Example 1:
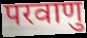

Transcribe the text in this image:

परवाणु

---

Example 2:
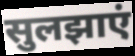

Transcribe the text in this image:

सुलझाएं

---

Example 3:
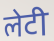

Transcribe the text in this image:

लेटी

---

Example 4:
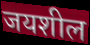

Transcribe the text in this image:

जयशील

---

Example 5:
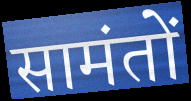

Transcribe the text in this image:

सामंतों